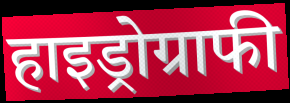
हाइड्रोग्राफी